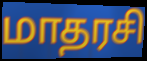
மாதரசி